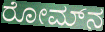
ರೋಮ್‌ನ